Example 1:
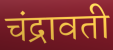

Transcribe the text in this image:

चंद्रावती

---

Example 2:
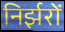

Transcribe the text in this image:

निर्झरों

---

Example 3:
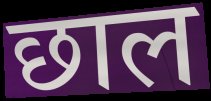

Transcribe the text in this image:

छाल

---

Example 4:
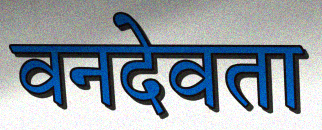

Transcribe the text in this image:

वनदेवता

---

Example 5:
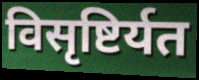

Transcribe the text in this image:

विसृष्टिर्यत